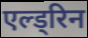
एल्ड्रिन